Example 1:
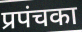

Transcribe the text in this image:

प्रपंचका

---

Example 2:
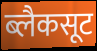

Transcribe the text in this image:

ब्लैकसूट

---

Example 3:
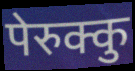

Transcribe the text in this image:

पेरुक्कु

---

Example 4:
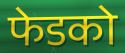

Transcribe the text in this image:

फेडको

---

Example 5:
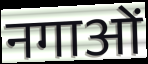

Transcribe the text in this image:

नगाओं